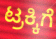
ಟ್ರಕ್ಕಿಗೆ